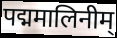
पद्ममालिनीम्